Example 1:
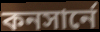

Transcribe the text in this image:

কনসার্নে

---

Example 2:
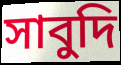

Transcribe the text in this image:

সাবুদি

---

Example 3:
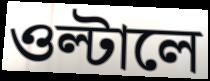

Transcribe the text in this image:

ওল্টালে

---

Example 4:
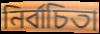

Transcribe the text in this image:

নির্বাচিতা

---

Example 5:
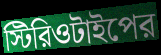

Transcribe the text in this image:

স্টিরিওটাইপের